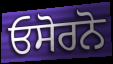
ਓਸੋਰਨੋ